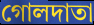
গোলদাতা